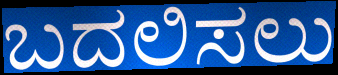
ಬದಲಿಸಲು